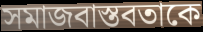
সমাজবাস্তবতাকে